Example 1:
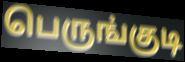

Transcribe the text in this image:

பெருங்குடி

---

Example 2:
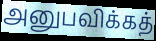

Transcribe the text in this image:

அனுபவிக்கத்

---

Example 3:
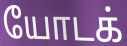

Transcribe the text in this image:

யோடக்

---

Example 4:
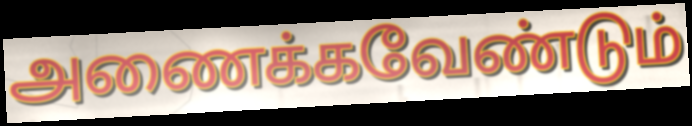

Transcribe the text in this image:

அணைக்கவேண்டும்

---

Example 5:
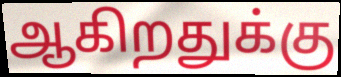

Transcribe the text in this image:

ஆகிறதுக்கு